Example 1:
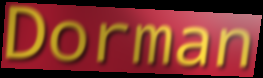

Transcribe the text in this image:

Dorman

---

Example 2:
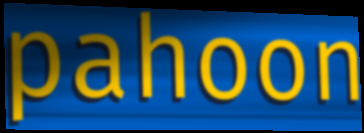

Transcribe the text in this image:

pahoon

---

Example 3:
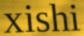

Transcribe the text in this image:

xishi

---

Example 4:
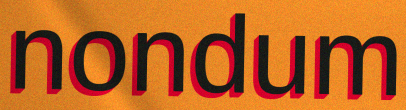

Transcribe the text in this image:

nondum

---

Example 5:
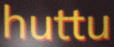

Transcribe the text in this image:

huttu